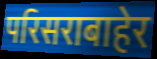
परिसराबाहेर